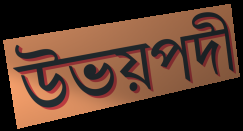
উভয়পদী